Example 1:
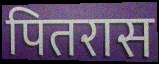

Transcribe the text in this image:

पितरास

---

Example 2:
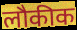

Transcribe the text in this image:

लौकीक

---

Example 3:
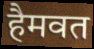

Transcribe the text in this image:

हैमवत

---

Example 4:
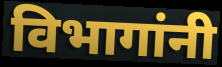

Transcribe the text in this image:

विभागांनी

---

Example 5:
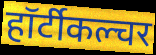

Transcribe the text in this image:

हॉर्टीकल्चर